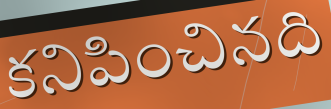
కనిపించినది